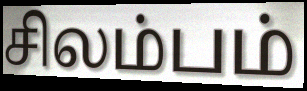
சிலம்பம்